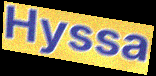
Hyssa